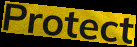
Protect